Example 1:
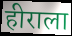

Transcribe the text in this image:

हीराला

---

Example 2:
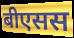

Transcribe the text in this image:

बीएसस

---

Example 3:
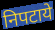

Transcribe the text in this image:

निपटाये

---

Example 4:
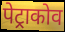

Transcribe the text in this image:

पेट्राकोव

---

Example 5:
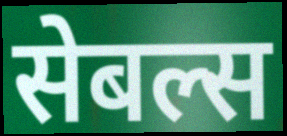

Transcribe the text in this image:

सेबल्स